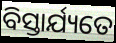
ବିସ୍ତାର୍ଯ୍ୟତେ